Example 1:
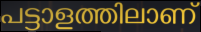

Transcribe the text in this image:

പട്ടാളത്തിലാണ്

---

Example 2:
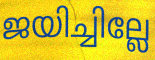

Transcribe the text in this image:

ജയിച്ചില്ലേ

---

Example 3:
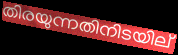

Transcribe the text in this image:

തിരയുന്നതിനിടയില്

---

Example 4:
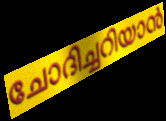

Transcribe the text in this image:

ചോദിച്ചറിയാൻ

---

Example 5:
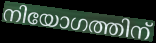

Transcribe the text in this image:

നിയോഗത്തിന്